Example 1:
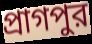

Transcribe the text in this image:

প্রাগপুর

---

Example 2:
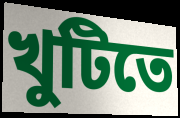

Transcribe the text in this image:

খুটিতে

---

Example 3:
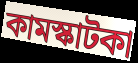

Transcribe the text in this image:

কামস্কাটকা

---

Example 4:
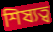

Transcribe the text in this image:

শিষ্যত্ব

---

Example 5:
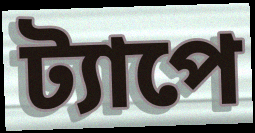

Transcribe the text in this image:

ট্যাপে